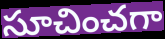
సూచించగా